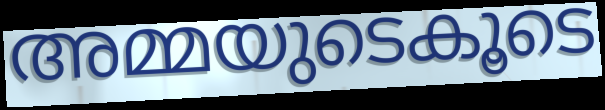
അമ്മയുടെകൂടെ